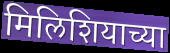
मिलिशियाच्या